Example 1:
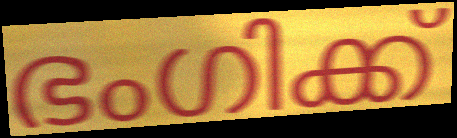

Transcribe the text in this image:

ഭംഗിക്ക്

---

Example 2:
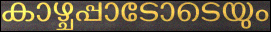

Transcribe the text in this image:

കാഴ്ചപ്പാടോടെയും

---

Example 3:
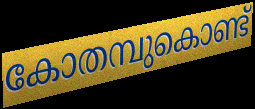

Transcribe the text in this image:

കോതമ്പുകൊണ്ട്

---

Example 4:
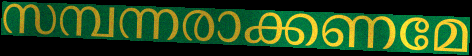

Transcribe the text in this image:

സമ്പന്നരാക്കണമേ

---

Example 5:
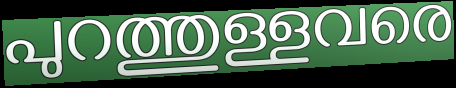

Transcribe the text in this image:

പുറത്തുള്ളവരെ